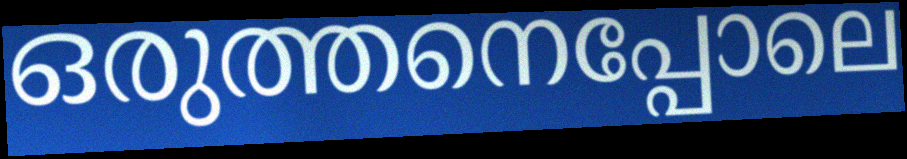
ഒരുത്തനെപ്പോലെ